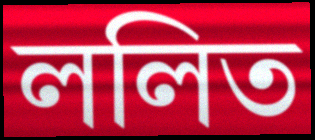
ললিত